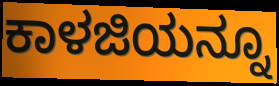
ಕಾಳಜಿಯನ್ನೂ